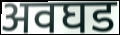
अवघड